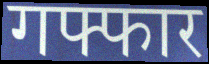
गफ्फार